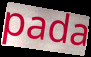
pada